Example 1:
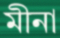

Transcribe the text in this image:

মীনা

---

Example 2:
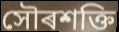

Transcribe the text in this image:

সৌৰশক্তি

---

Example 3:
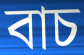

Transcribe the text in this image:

বাচ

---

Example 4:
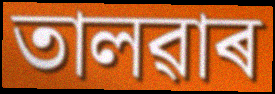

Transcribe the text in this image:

তালৱাৰ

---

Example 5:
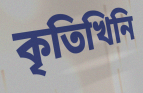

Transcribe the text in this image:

কৃতিখিনি